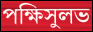
পক্ষিসুলভ